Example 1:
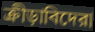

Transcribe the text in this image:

ক্রীড়াবিদেরা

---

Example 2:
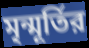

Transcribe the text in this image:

মৃন্মূর্তির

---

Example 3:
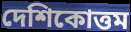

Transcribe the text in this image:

দেশিকোত্তম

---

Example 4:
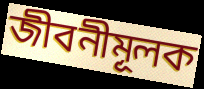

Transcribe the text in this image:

জীবনীমূলক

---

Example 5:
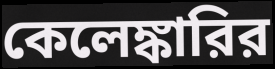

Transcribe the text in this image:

কেলেঙ্কারির